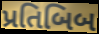
પ્રતિબિબ